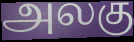
அலகு